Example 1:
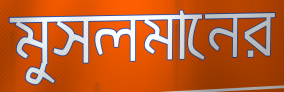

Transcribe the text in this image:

মুসলমানের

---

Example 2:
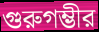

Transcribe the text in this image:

গুরুগম্ভীর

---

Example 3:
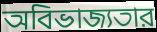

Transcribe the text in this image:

অবিভাজ্যতার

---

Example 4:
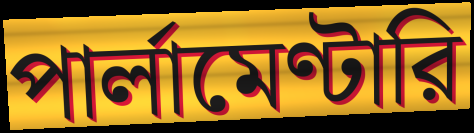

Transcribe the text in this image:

পার্লামেণ্টারি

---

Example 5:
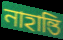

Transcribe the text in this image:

নাহান্তি